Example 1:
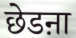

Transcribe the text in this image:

छेडऩा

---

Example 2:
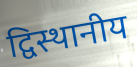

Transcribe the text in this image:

द्विस्थानीय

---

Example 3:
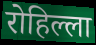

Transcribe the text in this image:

रोहिल्ला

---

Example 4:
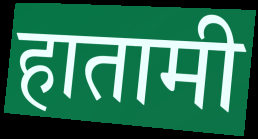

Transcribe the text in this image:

हातामी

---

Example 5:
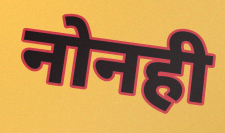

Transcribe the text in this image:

नोनही